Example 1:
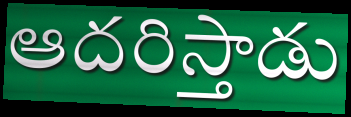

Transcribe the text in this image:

ఆదరిస్తాడు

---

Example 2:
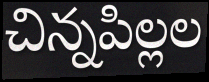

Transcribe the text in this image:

చిన్నపిల్లల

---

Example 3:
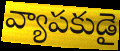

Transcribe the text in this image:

వ్యాపకుడై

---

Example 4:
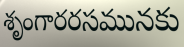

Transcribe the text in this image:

శృంగారరసమునకు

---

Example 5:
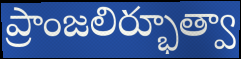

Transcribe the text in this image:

ప్రాంజలిర్భూత్వా